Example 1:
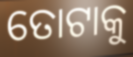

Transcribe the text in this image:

ତୋଟାକୁ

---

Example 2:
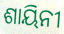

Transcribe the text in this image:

ଶାୟିନୀ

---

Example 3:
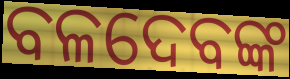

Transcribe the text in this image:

ବଳଦେବଙ୍କ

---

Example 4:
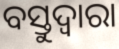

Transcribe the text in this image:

ବସ୍ତୁଦ୍ଵାରା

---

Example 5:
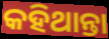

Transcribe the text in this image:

କହିଥାନ୍ତା